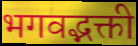
भगवद्भक्ती